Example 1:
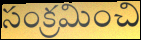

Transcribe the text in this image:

సంక్రమించి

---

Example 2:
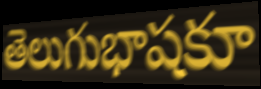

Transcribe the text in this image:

తెలుగుభాషకూ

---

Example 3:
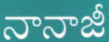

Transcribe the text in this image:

నానాజీ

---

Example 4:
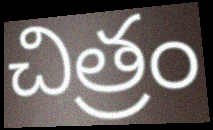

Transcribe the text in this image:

చిత్రం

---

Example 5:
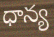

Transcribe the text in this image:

ధాన్య